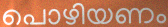
പൊഴിയണം